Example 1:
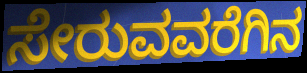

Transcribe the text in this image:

ಸೇರುವವರೆಗಿನ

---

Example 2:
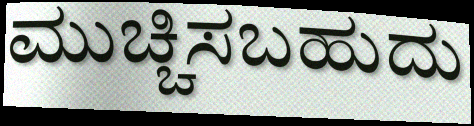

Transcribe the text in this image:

ಮುಚ್ಚಿಸಬಹುದು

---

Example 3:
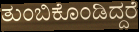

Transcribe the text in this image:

ತುಂಬಿಕೊಂಡಿದ್ದರೆ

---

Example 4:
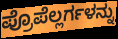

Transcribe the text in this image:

ಪ್ರೊಪೆಲ್ಲರ್ಗಳನ್ನು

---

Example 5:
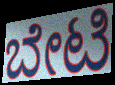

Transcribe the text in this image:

ಬೇಟಿ